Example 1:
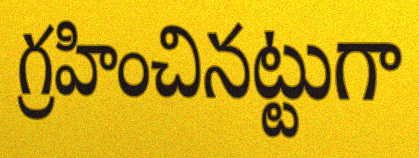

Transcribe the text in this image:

గ్రహించినట్టుగా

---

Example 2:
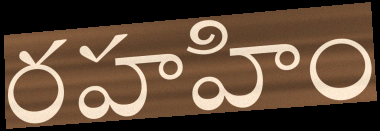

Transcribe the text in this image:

రహహిం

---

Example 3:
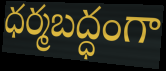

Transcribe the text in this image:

ధర్మబద్ధంగా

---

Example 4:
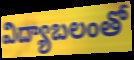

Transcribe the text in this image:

విద్యాబలంతో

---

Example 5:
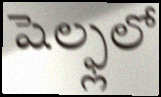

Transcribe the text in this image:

షెల్ఫ్లలో